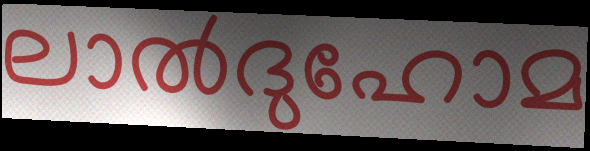
ലാൽദുഹോമ